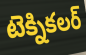
టెక్నికలర్